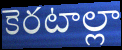
కెరటాల్లా